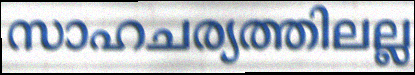
സാഹചര്യത്തിലല്ല